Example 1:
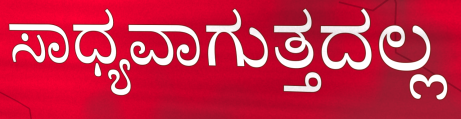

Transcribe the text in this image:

ಸಾಧ್ಯವಾಗುತ್ತದಲ್ಲ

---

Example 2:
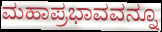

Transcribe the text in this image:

ಮಹಾಪ್ರಭಾವವನ್ನೂ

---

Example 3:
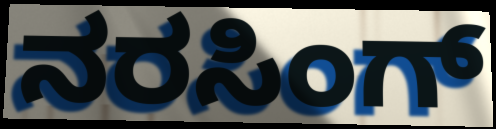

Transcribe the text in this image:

ನರಸಿಂಗ್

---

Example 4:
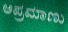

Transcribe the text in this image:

ಅಪ್ರಮಾಣು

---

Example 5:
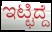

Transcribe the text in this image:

ಇಟ್ಟಿದ್ದೆ